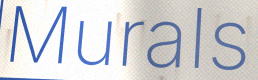
Murals